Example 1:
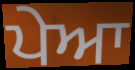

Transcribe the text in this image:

ਪੇਆ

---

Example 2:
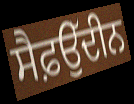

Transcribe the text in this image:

ਸੈਫ਼ਉੱਦੀਨ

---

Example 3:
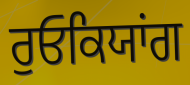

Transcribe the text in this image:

ਰੁਓਕਿਯਾਂਗ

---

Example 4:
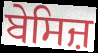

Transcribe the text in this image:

ਬੇਸਿਜ਼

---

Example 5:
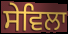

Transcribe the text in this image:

ਸੇਵਿਲਾ